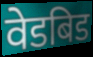
वेडबिड